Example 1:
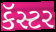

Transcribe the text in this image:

કૅસ્ટર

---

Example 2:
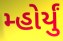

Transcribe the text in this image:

મ્હોર્યું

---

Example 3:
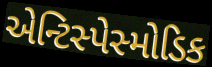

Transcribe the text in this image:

એન્ટિસ્પેસ્મોડિક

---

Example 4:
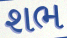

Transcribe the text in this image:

શભ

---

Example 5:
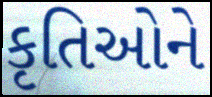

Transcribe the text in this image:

કૃતિઓને